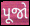
પૂજો